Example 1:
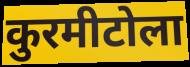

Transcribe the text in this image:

कुरमीटोला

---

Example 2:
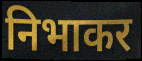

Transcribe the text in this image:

निभाकर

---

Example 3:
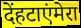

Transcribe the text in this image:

देंहटाएंमेरा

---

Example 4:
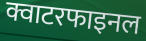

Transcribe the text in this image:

क्वाटरफाइनल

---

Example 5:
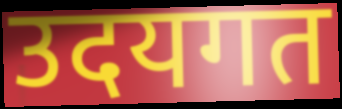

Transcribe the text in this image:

उदयगत